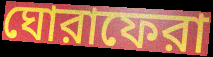
ঘোরাফেরা